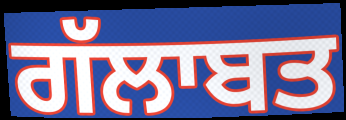
ਗੱਲਾਬਤ